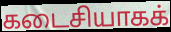
கடைசியாகக்